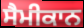
ਸੈਮੀਕਾਨ